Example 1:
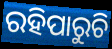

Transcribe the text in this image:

ରହିପାରୁଚି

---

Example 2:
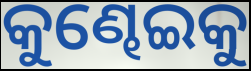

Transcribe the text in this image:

କୁଣ୍ଢେଇକୁ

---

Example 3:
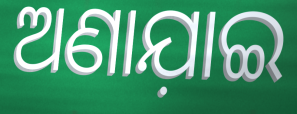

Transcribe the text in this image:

ଅଣାଯ଼ାଇ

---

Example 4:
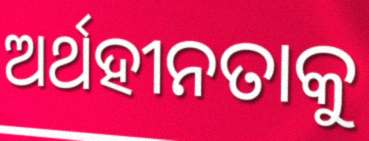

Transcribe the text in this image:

ଅର୍ଥହୀନତାକୁ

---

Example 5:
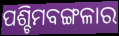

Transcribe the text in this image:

ପଶ୍ଚିମବଙ୍ଗଳାର